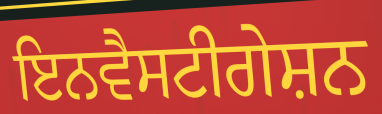
ਇਨਵੈਸਟੀਗੇਸ਼ਨ